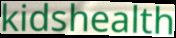
kidshealth